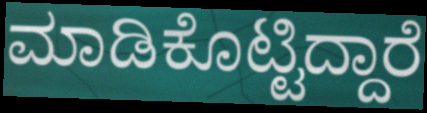
ಮಾಡಿಕೊಟ್ಟಿದ್ದಾರೆ